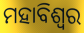
ମହାବିଶ୍ଵର